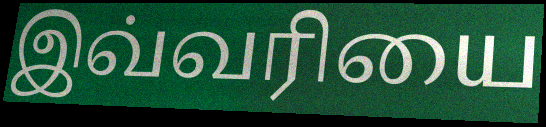
இவ்வரியை